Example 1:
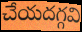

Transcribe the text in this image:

చేయదగ్గవి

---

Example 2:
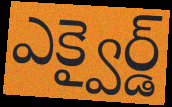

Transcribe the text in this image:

ఎక్వైర్డ్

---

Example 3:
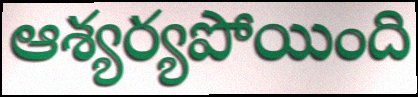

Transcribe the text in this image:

ఆశ్యర్యపోయింది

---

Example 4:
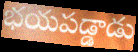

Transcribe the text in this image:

భయపడ్డాడు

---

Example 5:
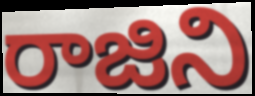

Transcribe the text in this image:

రాజిని